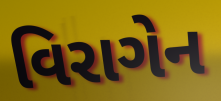
વિરાગેન